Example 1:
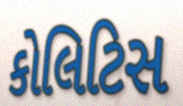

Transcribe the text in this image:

કોલિટિસ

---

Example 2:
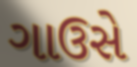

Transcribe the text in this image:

ગાઉસે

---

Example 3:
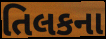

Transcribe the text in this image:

તિલકના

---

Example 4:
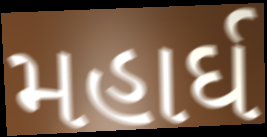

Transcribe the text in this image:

મહાર્ઘ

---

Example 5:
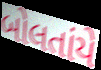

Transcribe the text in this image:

બોલતાંયે